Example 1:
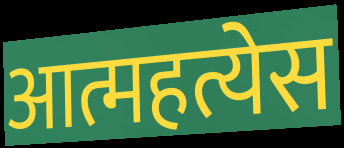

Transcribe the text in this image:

आत्महत्येस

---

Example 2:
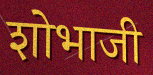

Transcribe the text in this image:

शोभाजी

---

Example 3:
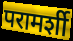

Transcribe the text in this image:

परामर्शी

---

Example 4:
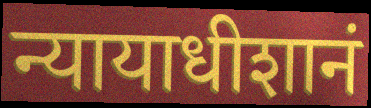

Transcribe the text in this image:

न्यायाधीशानं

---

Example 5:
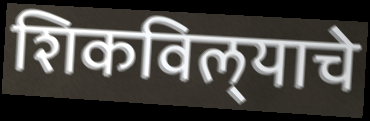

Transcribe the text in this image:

शिकविल्याचे